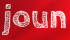
joun